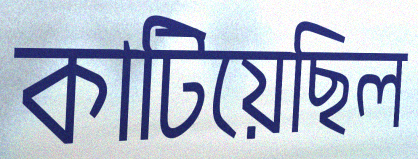
কাটিয়েছিল